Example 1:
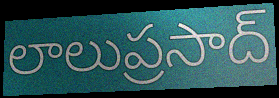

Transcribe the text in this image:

లాలుప్రసాద్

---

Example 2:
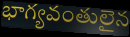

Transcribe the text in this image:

భాగ్యవంతులైన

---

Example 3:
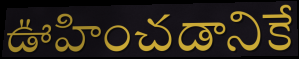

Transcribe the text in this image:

ఊహించడానికే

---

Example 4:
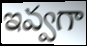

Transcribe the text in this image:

ఇవ్వగా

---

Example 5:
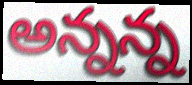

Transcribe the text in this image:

అన్నన్న